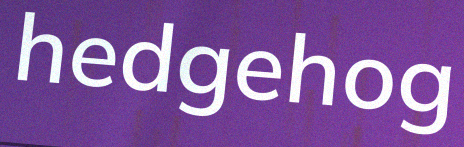
hedgehog